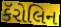
કૅરોલિન